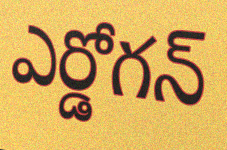
ఎర్డోగన్